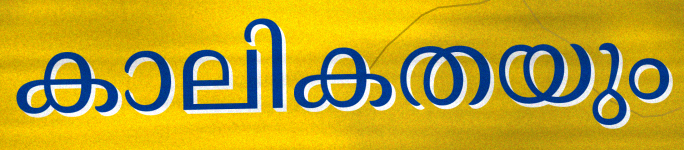
കാലികതയും